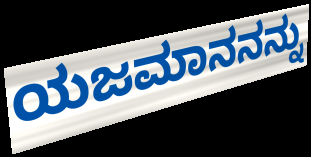
ಯಜಮಾನನನ್ನು